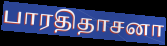
பாரதிதாசனா